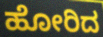
ಹೋರಿದ